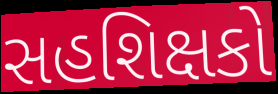
સહશિક્ષકો